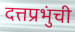
दत्तप्रभुंची